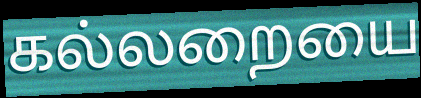
கல்லறையை